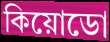
কিয়োডো